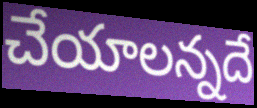
చేయాలన్నదే